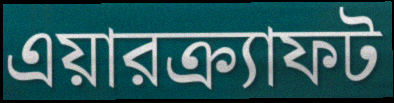
এয়ারক্র্যাফট